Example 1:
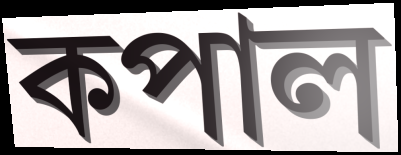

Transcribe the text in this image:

কপাল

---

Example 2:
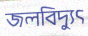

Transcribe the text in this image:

জলবিদ্যুৎ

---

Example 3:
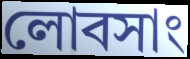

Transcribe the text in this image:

লোবসাং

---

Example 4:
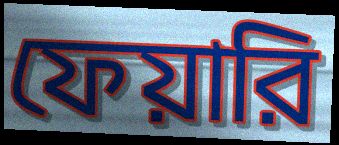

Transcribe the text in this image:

ফেয়ারি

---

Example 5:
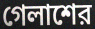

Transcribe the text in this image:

গেলাশের